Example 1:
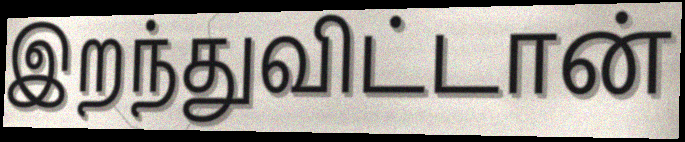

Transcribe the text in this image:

இறந்துவிட்டான்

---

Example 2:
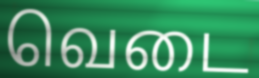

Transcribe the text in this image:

வெடை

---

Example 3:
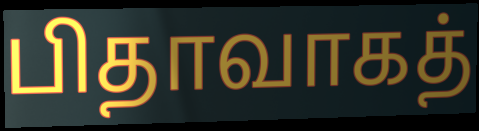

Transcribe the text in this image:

பிதாவாகத்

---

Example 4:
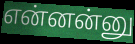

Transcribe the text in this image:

என்னன்னு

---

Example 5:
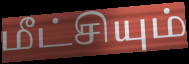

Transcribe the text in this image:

மீட்சியும்